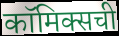
कॉमिक्सची